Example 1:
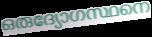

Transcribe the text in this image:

ഒരുദ്യോഗസ്ഥനെ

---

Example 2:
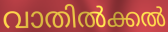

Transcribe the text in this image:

വാതിൽക്കൽ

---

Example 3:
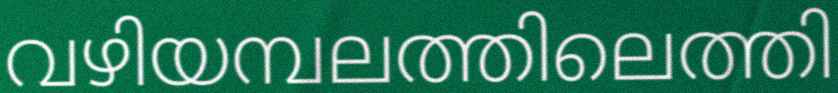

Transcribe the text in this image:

വഴിയമ്പലത്തിലെത്തി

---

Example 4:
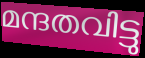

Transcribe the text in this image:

മന്ദതവിട്ടു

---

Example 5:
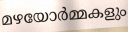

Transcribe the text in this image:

മഴയോർമ്മകളും